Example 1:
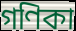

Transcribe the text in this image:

গণিকা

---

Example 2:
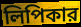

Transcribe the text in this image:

লিপিকার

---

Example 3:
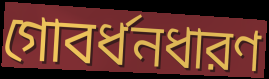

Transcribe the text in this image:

গোবর্ধনধারণ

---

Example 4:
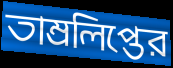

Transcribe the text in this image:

তাম্রলিপ্তের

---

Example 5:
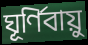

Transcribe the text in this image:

ঘূর্ণিবায়ু